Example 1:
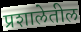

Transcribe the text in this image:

प्रशालेतील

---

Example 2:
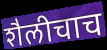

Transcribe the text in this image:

शैलीचाच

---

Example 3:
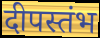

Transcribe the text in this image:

दीपस्तंभ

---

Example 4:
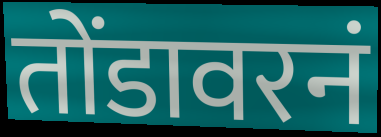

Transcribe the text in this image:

तोंडावरनं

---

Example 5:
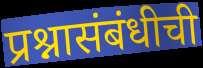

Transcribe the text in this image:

प्रश्नासंबंधीची